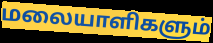
மலையாளிகளும்